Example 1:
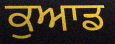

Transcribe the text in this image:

ਕੁਆਡ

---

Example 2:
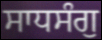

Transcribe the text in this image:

ਸਾਧਸੰਗੁ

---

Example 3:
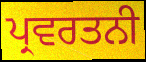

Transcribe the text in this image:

ਪ੍ਰਵਰਤਨੀ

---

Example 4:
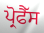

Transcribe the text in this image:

ਪ੍ਰੋਫੈੱਸ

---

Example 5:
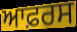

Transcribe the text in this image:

ਆਫ਼ਰਸ